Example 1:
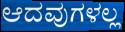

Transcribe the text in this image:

ಆದವುಗಳಲ್ಲ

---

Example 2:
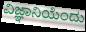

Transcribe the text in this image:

ವಿಜ್ಞಾನಿಯೆಂದು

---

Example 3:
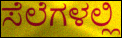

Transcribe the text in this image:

ಸೆಲೆಗಳಲ್ಲಿ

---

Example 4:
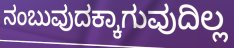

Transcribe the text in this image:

ನಂಬುವುದಕ್ಕಾಗುವುದಿಲ್ಲ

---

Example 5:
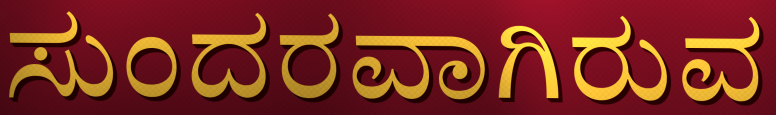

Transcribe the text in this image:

ಸುಂದರವಾಗಿರುವ